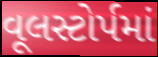
વૂલસ્ટોર્પમાં